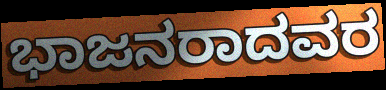
ಭಾಜನರಾದವರ